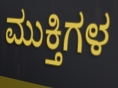
ಮುಕ್ತಿಗಳ